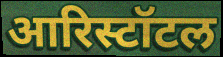
आरिस्टॉटल